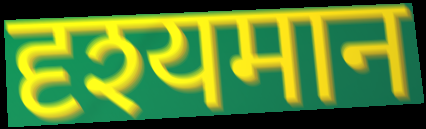
दृश्यमान